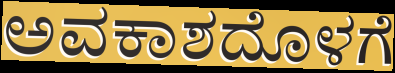
ಅವಕಾಶದೊಳಗೆ